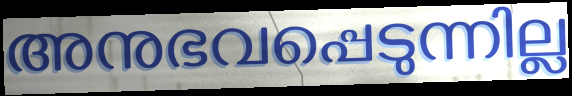
അനുഭവപ്പെടുന്നില്ല